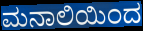
ಮನಾಲಿಯಿಂದ